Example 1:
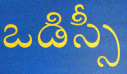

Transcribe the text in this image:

ఒడిస్సీ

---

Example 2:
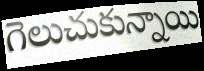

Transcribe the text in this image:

గెలుచుకున్నాయి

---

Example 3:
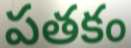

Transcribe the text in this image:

పతకం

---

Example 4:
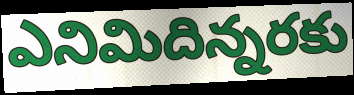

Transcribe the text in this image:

ఎనిమిదిన్నరకు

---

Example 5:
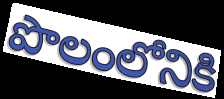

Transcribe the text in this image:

పొలంలోనికి